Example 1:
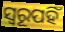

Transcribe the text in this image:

ସ୍ୱରୂପହିଁ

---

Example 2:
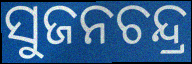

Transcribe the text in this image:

ସୁଜନଚନ୍ଦ୍ର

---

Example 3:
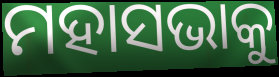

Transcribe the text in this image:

ମହାସଭାକୁ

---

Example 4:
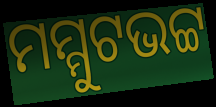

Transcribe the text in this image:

ମମ୍ମୁଟଭଟ୍ଟ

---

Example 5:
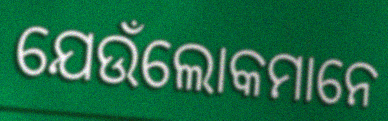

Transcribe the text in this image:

ଯେଉଁଲୋକମାନେ